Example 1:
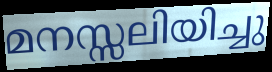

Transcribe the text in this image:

മനസ്സലിയിച്ചു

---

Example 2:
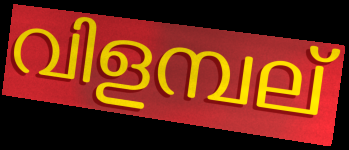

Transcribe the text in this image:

വിളമ്പല്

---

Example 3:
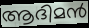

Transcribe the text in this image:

ആദിമൻ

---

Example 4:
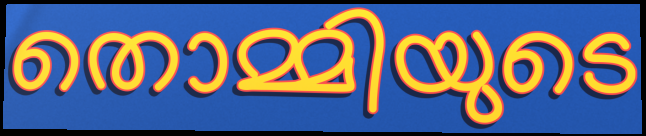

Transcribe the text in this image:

തൊമ്മിയുടെ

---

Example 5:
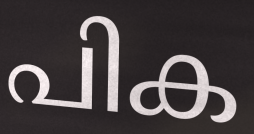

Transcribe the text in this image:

പിക